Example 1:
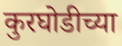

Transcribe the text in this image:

कुरघोडीच्या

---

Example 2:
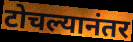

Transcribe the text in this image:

टोचल्यानंतर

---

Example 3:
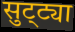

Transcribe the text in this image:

सुट्‌ट्या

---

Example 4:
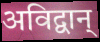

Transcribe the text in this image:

अविद्वान्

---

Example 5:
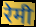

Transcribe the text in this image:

रेमी